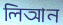
লিআন